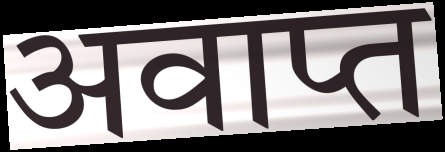
अवाप्त